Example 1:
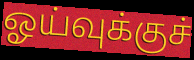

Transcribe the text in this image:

ஓய்வுக்குச்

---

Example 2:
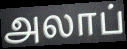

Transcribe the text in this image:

அலாப்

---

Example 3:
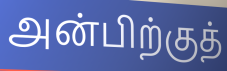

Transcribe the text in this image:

அன்பிற்குத்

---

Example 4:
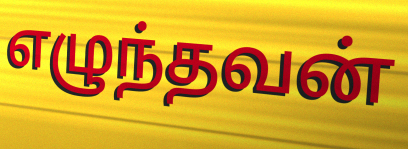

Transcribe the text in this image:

எழுந்தவன்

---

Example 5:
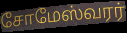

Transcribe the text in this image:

சோமேஸ்வரர்